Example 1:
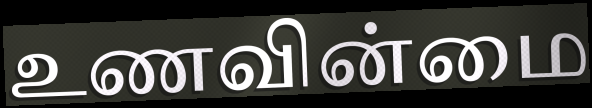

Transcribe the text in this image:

உணவின்மை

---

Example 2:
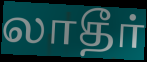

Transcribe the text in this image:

லாதீர்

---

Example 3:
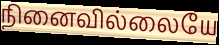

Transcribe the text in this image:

நினைவில்லையே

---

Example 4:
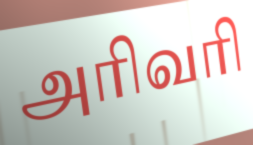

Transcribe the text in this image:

அரிவரி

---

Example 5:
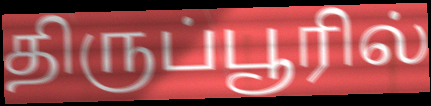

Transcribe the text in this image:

திருப்பூரில்